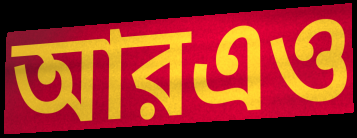
আরএও